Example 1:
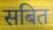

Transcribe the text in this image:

सबित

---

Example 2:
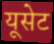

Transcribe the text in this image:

यूसेट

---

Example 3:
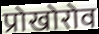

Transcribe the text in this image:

प्रोखोरोव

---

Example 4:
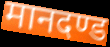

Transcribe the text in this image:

मानदण्ड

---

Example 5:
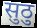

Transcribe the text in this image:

सुठु